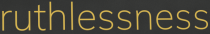
ruthlessness